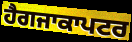
ਹੈਗਜਾਕਾਪਟਰ